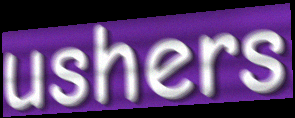
ushers